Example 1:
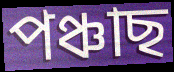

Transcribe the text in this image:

পঞ্চাছ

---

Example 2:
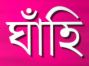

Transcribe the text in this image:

ঘাঁহি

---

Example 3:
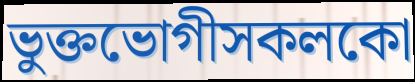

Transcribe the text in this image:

ভুক্তভোগীসকলকো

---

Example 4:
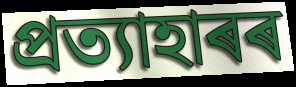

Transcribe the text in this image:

প্ৰত্যাহাৰৰ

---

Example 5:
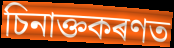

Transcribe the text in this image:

চিনাক্তকৰণত